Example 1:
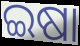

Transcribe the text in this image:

ଇଷା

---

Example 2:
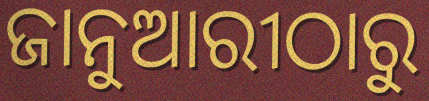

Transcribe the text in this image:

ଜାନୁଆରୀଠାରୁ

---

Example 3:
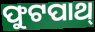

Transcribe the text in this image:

ଫୁଟପାଥ୍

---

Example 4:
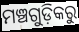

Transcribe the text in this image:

ମଞ୍ଚଗୁଡ଼ିକରୁ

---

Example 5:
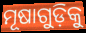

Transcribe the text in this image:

ମୂଷାଗୁଡ଼ିକୁ